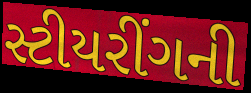
સ્ટીયરીંગની